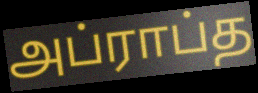
அப்ராப்த